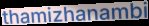
thamizhanambi